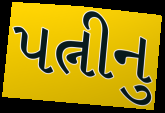
પત્નીનુ